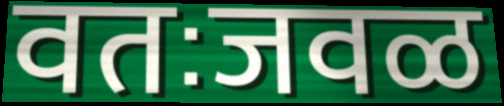
वतःजवळ